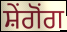
ਸ਼ੇਂਗੋਂਗ